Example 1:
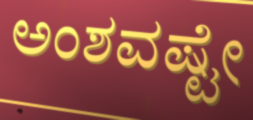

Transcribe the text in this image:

ಅಂಶವಷ್ಟೇ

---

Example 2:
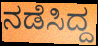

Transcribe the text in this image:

ನಡೆಸಿದ್ದ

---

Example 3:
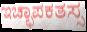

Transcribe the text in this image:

ಇಚ್ಛಾಪಕತಸ್ಸ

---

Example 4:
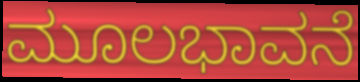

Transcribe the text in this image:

ಮೂಲಭಾವನೆ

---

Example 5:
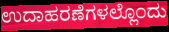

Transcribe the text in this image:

ಉದಾಹರಣೆಗಳಲ್ಲೊಂದು